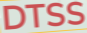
DTSS